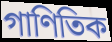
গাণিতিক